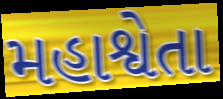
મહાશ્વેતા